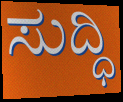
ಸುದ್ಧಿ